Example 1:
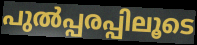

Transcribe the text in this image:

പുൽപ്പരപ്പിലൂടെ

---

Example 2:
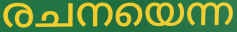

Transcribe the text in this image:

രചനയെന്ന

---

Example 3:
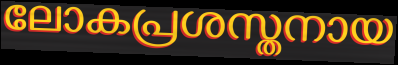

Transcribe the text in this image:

ലോകപ്രശസ്തനായ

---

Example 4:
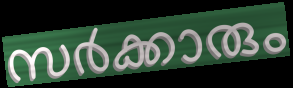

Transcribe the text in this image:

സർക്കാരും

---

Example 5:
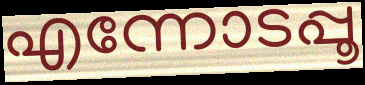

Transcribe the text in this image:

എന്നോടപ്പൂ